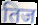
तिज